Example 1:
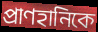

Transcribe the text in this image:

প্রাণহানিকে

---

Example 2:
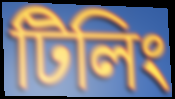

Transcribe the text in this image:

টিলিং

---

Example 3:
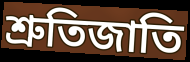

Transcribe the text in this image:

শ্রুতিজাতি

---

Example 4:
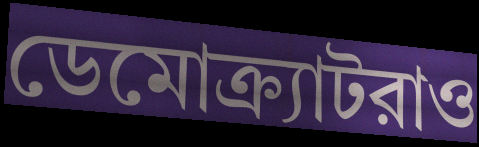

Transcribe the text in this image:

ডেমোক্র্যাটরাও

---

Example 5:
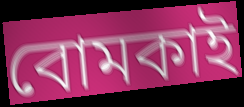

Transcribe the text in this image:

বোমকাই